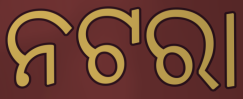
ନଟରା